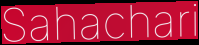
Sahachari